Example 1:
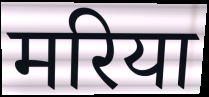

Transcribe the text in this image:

मरिया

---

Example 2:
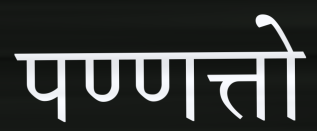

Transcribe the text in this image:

पण्णत्तो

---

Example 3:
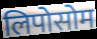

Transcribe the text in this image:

लिपोसोम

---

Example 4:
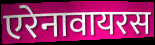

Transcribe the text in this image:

एरेनावायरस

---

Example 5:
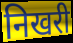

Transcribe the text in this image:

निखरी